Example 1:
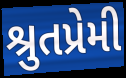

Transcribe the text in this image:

શ્રુતપ્રેમી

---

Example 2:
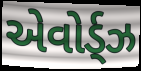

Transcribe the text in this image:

એવોર્ડ્ઝ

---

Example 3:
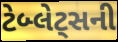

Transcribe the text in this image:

ટેબ્લેટ્સની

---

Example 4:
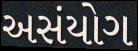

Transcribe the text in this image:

અસંયોગ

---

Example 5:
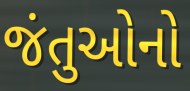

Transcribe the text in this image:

જંતુઓનો